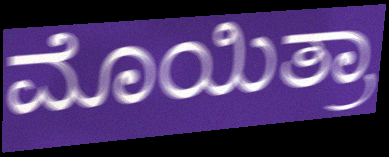
ಮೊಯಿತ್ರಾ